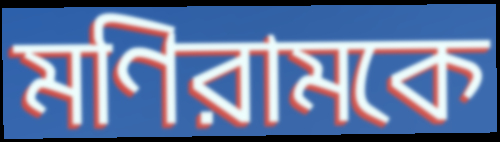
মণিরামকে